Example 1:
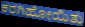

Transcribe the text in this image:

ಕರಗಿಹೋಯಿತು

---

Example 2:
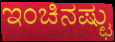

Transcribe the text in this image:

ಇಂಚಿನಷ್ಟು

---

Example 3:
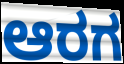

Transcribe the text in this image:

ಆರಗ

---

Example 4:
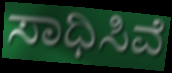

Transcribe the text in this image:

ಸಾಧಿಸಿವೆ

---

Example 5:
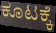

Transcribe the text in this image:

ಕೂಟಕ್ಕೆ